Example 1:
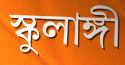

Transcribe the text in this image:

স্কুলাঙ্গী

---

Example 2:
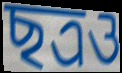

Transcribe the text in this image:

ছত্রও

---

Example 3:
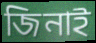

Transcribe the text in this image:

জিনাই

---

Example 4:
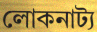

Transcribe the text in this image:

লোকনাট্য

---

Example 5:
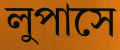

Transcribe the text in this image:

লুপাসে